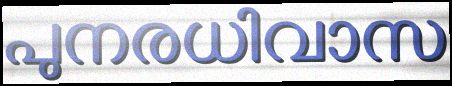
പുനരധിവാസ